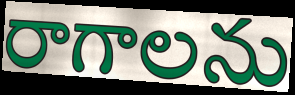
రాగాలను